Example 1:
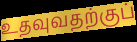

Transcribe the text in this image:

உதவுவதற்குப்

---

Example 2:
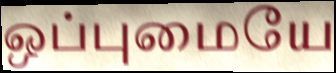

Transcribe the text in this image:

ஒப்புமையே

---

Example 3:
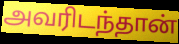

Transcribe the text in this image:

அவரிடந்தான்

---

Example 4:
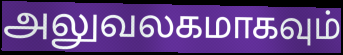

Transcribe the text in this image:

அலுவலகமாகவும்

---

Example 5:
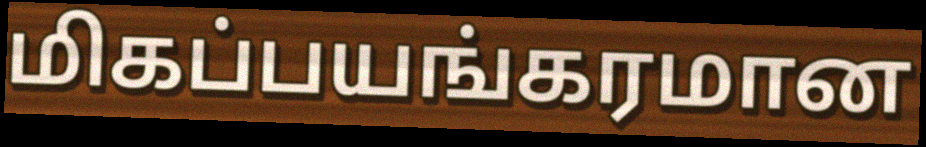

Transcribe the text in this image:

மிகப்பயங்கரமான